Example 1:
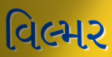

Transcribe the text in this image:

વિલ્મર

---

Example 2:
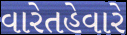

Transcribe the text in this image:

વારેતહેવારે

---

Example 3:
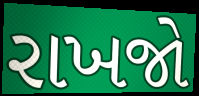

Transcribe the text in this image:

રાખજો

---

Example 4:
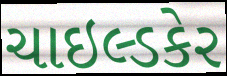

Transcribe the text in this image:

ચાઇલ્ડકેર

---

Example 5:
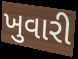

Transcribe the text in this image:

ખુવારી